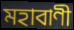
মহাবাণী